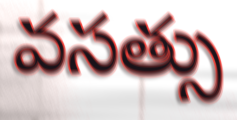
వసత్సు